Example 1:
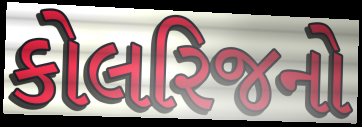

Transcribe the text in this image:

કોલરિજનો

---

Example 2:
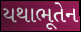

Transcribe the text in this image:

યથાભૂતેન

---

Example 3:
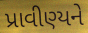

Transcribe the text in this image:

પ્રાવીણ્યને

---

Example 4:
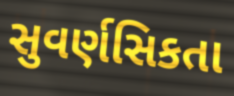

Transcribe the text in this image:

સુવર્ણસિકતા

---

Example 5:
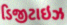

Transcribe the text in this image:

ડિજીટાઇઝ